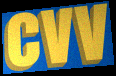
cvv